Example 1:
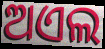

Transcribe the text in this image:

ଅଏଲ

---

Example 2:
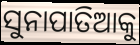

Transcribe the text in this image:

ସୁନାପାତିଆକୁ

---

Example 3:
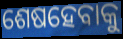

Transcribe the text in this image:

ଶେଷହେବାକୁ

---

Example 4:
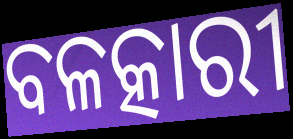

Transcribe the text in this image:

ବଳତ୍କାରୀ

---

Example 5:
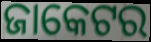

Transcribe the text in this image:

ଜାକେଟର